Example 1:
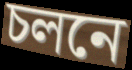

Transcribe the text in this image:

চলনে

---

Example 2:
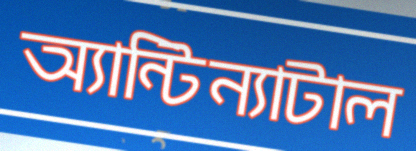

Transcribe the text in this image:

অ্যান্টিন্যাটাল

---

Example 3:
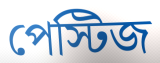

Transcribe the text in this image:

পেস্টিজ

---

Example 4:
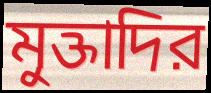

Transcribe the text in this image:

মুক্তাদির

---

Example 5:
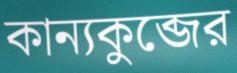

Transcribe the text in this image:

কান্যকুব্জের